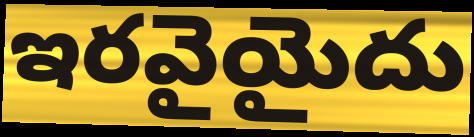
ఇరవైయైదు